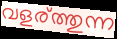
വളര്ത്തുന്ന